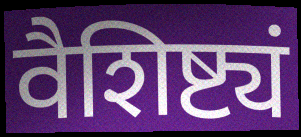
वैशिष्ट्यं